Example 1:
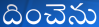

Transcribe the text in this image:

దించెను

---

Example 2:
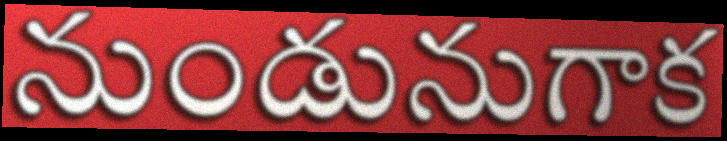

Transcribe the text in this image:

నుండునుగాక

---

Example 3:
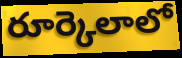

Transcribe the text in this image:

రూర్కెలాలో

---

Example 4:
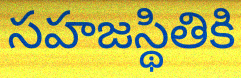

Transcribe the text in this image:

సహజస్థితికి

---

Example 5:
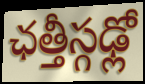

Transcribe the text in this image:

ఛత్తీస్గఢ్లో